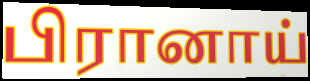
பிரானாய்